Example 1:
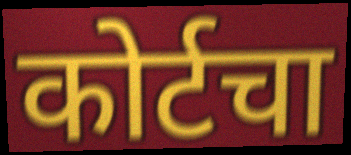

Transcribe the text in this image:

कोर्टचा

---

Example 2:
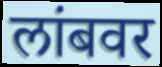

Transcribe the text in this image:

लांबवर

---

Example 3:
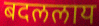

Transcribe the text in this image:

बदललाय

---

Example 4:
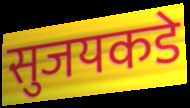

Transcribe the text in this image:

सुजयकडे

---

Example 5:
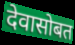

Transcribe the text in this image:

देवासोबत